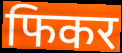
फिकर